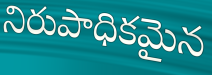
నిరుపాధికమైన